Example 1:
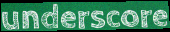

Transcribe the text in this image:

underscore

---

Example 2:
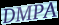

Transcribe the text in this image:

DMPA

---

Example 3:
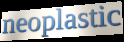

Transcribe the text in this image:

neoplastic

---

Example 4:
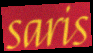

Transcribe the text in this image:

saris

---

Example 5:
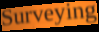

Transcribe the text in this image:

Surveying